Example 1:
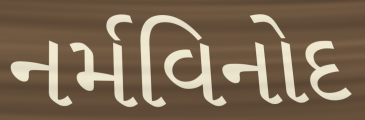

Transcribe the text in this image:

નર્મવિનોદ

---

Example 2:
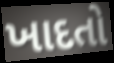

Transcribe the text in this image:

ખાદતો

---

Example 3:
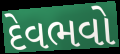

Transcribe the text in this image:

દેવભવો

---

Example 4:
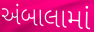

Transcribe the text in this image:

અંબાલામાં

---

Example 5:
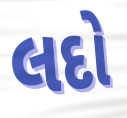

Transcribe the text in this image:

લદો